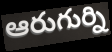
ఆరుగుర్ని